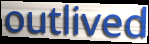
outlived